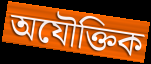
অযৌক্তিক